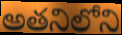
అతనిలోని